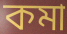
কমা